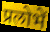
प्रलोभें